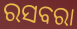
ରସବରା